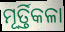
ମୂର୍ତ୍ତିକଳା